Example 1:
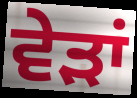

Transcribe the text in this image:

ਵੇੜਾਂ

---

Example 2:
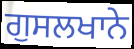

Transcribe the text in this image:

ਗੁਸਲਖਾਨੇ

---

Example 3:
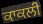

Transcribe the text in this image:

ਕਾਕਲੀ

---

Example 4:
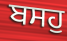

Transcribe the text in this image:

ਬਸਹੁ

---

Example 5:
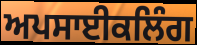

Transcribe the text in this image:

ਅਪਸਾਈਕਲਿੰਗ